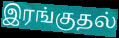
இரங்குதல்